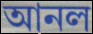
আনল